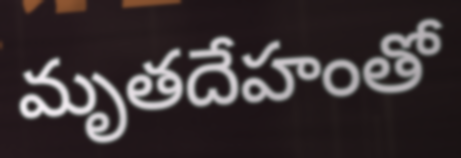
మృతదేహంతో